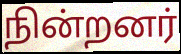
நின்றனர்